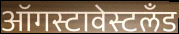
ऑगस्टावेस्टलँड